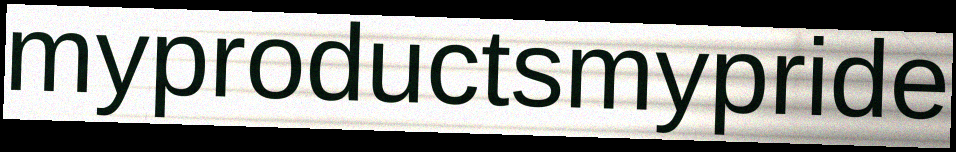
myproductsmypride